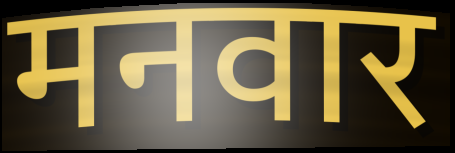
मनवार